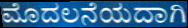
ಮೊದಲನೆಯದಾಗಿ